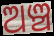
ଅଞ୍ଚ